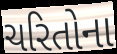
ચરિતોના